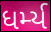
ધર્મ્ય